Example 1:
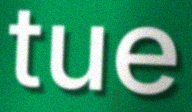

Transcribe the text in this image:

tue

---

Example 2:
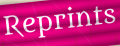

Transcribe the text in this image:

Reprints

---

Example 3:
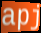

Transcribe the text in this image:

apj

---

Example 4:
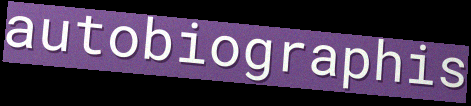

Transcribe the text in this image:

autobiographis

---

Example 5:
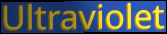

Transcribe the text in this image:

Ultraviolet